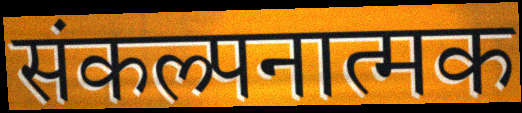
संकल्पनात्मक